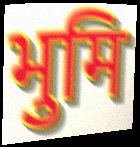
भुमि